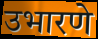
उभारणे